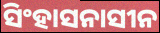
ସିଂହାସନାସୀନ